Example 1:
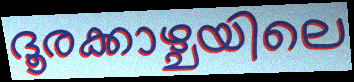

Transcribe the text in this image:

ദൂരക്കാഴ്ചയിലെ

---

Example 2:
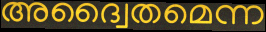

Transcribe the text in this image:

അദ്വൈതമെന്ന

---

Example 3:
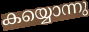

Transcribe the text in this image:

കയ്യൊന്നു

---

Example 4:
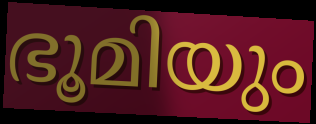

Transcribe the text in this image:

ഭൂമിയും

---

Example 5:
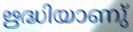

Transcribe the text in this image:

ഋദ്ധിയാണു്